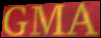
GMA